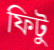
ফিটু